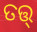
ତତ୍ତ୍